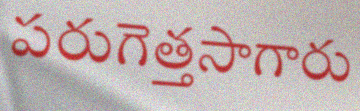
పరుగెత్తసాగారు